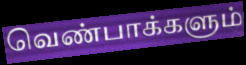
வெண்பாக்களும்